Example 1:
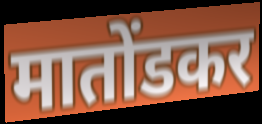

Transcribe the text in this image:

मातोंडकर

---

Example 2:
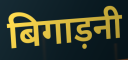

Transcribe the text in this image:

बिगाड़नी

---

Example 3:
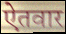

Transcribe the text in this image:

ऐतवार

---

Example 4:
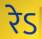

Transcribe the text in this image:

रेऽ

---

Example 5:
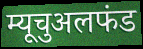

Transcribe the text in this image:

म्यूचुअलफंड